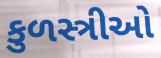
કુળસ્ત્રીઓ